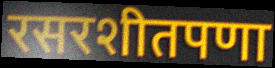
रसरशीतपणा